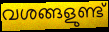
വശങ്ങളുണ്ട്